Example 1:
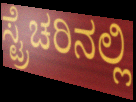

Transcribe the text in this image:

ಸ್ಟ್ರೆಚರಿನಲ್ಲಿ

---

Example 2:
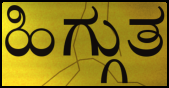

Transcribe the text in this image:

ಹಿಗ್ಗುತ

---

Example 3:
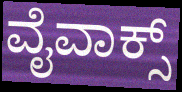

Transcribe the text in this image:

ವೈವಾಕ್ಸ್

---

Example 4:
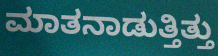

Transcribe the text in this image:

ಮಾತನಾಡುತ್ತಿತ್ತು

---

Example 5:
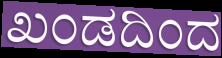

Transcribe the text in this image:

ಖಂಡದಿಂದ